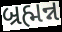
બ્રહ્મન્ન